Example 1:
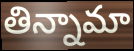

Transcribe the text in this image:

తిన్నామా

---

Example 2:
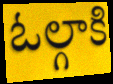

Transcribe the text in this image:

ఓల్గాకి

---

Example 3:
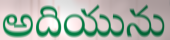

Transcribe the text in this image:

అదియును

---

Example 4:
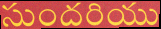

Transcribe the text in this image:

సుందరియు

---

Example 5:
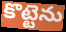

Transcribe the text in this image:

కొట్టెను